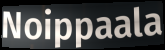
Noippaala